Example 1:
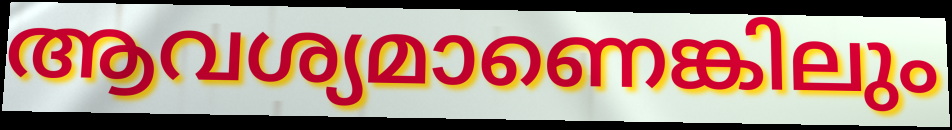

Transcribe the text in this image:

ആവശ്യമാണെങ്കിലും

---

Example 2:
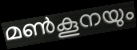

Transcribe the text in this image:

മൺകൂനയും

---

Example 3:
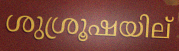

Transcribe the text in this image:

ശുശ്രൂഷയില്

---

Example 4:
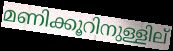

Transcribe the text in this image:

മണിക്കൂറിനുള്ളില്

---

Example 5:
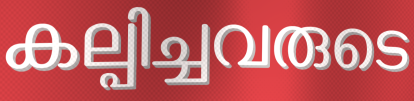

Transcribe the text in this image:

കല്പിച്ചവരുടെ